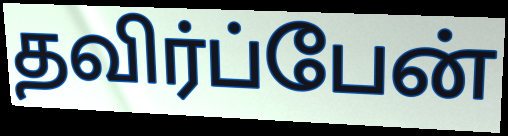
தவிர்ப்பேன்